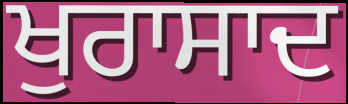
ਖੁਰਾਸਾਦ